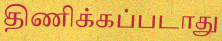
திணிக்கப்படாது